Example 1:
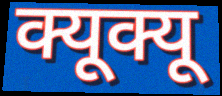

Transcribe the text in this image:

क्यूक्यू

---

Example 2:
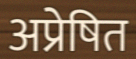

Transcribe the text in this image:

अप्रेषित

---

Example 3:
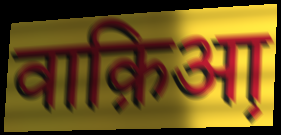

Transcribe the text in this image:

वाक़िआ़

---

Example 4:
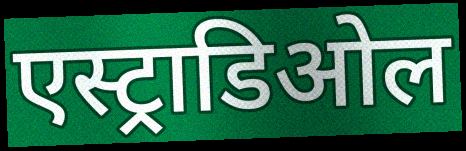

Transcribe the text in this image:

एस्ट्राडिओल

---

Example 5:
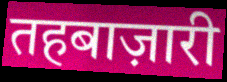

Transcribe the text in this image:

तहबाज़ारी